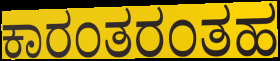
ಕಾರಂತರಂತಹ